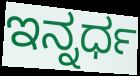
ಇನ್ನರ್ಧ